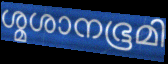
ശ്മശാനഭൂമി